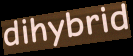
dihybrid